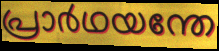
പ്രാർഥയന്തേ